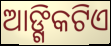
ଆଙ୍ଗିକଟିଏ